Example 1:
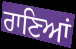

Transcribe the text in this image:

ਰਾਣਿਆਂ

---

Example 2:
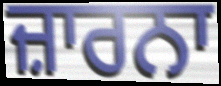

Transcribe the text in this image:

ਜ਼ਾਰਨਾ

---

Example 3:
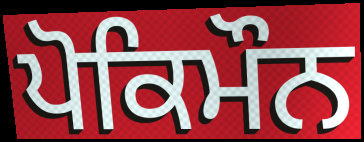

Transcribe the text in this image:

ਪੋਕਿਮੌਨ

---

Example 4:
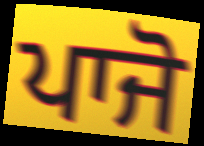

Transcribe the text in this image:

ਪਾਜੋ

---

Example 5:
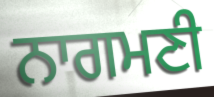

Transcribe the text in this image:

ਨਾਗਮਣੀ